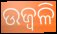
ଉଜ୍ୱଳି